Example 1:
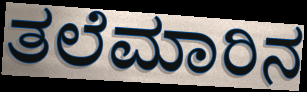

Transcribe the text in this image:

ತಲೆಮಾರಿನ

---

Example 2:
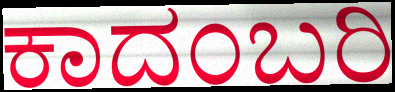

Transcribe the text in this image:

ಕಾದಂಬರಿ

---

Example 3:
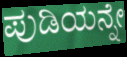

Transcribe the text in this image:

ಪುಡಿಯನ್ನೇ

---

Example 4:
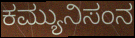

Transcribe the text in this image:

ಕಮ್ಯುನಿಸಂನ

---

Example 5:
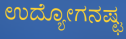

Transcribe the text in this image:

ಉದ್ಯೋಗನಷ್ಟ